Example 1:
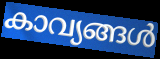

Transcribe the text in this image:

കാവ്യങ്ങൾ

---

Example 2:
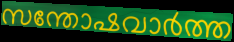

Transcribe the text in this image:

സന്തോഷവാർത്ത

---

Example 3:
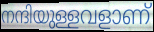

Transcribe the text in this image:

നന്ദിയുള്ളവളാണ്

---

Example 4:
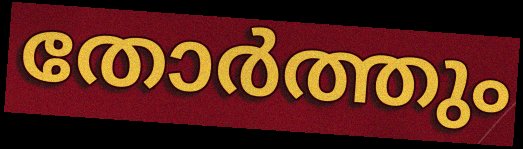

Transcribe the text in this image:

തോർത്തും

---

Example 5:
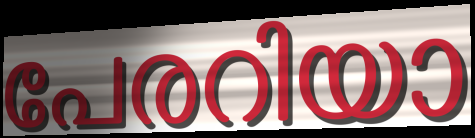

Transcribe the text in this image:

പേരറിയാ